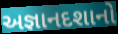
અજ્ઞાનદશાનો